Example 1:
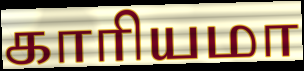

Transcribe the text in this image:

காரியமா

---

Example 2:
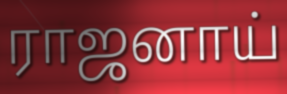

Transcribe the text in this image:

ராஜனாய்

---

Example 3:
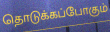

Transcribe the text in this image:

தொடுக்கப்போகும்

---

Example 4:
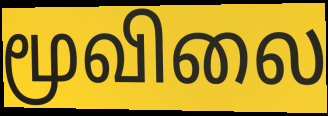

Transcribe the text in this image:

மூவிலை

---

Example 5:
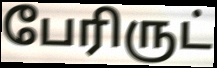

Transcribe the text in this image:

பேரிருட்